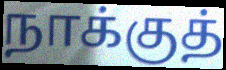
நாக்குத்